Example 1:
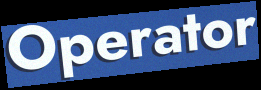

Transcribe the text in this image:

Operator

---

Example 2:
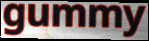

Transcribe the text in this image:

gummy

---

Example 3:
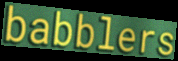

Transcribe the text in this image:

babblers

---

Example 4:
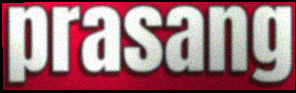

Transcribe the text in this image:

prasang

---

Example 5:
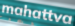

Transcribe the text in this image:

mahattva